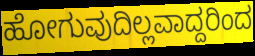
ಹೋಗುವುದಿಲ್ಲವಾದ್ದರಿಂದ